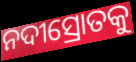
ନଦୀସ୍ରୋତକୁ